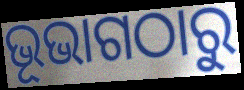
ଭୂଭାଗଠାରୁ